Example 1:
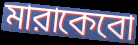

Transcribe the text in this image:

মারাকেবো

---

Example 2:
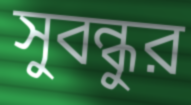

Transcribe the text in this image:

সুবন্ধুর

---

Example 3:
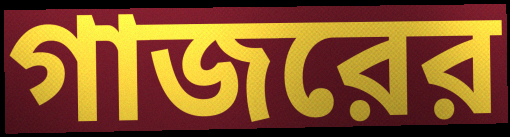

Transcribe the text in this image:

গাজরের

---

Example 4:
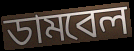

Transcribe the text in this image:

ডামবেল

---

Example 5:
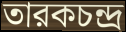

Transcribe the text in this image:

তারকচন্দ্র